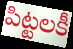
పిట్టలకీ